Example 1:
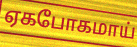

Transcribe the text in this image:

ஏகபோகமாய்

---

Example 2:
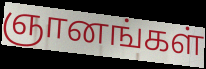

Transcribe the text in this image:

ஞானங்கள்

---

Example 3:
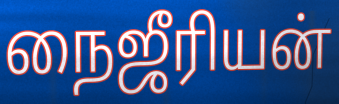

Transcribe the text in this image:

நைஜீரியன்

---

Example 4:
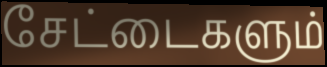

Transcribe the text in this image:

சேட்டைகளும்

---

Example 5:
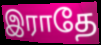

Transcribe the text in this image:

இராதே